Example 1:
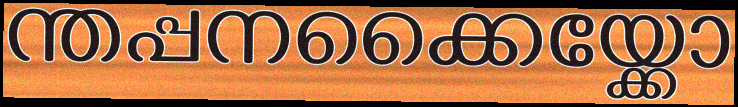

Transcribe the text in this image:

ന്തപ്പനക്കൈയ്ക്കോ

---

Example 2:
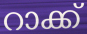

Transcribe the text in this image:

റാക്ക്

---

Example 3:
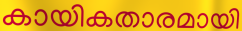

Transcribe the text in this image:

കായികതാരമായി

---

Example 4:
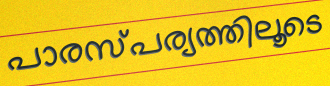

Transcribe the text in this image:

പാരസ്പര്യത്തിലൂടെ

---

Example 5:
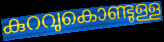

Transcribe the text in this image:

കുറവുകൊണ്ടുള്ള